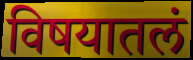
विषयातलं